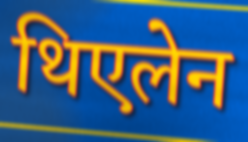
थिएलेन